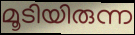
മൂടിയിരുന്ന